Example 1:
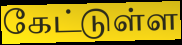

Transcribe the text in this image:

கேட்டுள்ள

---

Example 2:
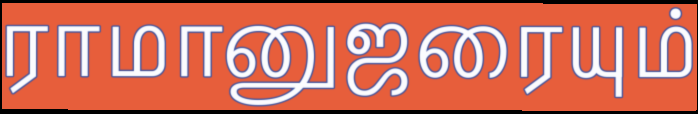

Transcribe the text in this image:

ராமானுஜரையும்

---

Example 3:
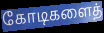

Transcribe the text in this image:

கோடிகளைத்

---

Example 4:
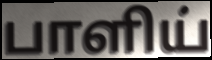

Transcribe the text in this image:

பாளிய்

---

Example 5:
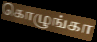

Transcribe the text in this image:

கொழுங்கா